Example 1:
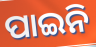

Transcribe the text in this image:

ପାଇନି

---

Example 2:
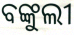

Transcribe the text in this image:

ବଙ୍କୁଲୀ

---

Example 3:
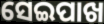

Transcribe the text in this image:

ସେଇପାଖ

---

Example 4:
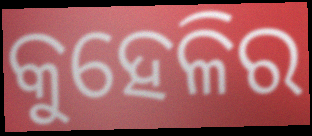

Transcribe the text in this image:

କୁହେଳିର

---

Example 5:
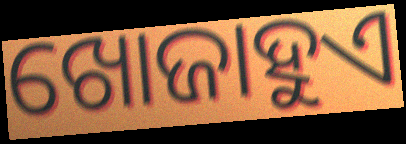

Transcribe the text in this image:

ଖୋଜାହୁଏ